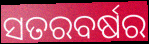
ସତରବର୍ଷର